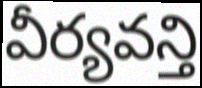
వీర్యవన్తి